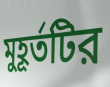
মুহূর্তটির